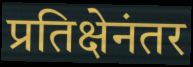
प्रतिक्षेनंतर